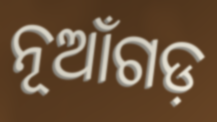
ନୂଆଁଗଡ଼